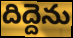
దిద్దెను